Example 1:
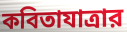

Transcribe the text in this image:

কবিতাযাত্রার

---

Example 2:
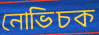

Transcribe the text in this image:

নোভিচক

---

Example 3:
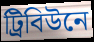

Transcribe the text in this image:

ট্রিবিউনে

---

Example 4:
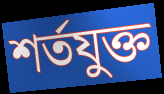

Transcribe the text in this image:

শর্তযুক্ত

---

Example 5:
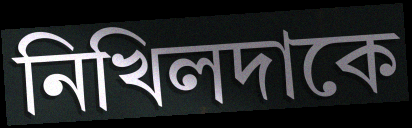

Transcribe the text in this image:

নিখিলদাকে